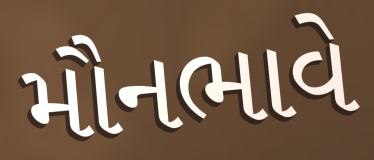
મૌનભાવે